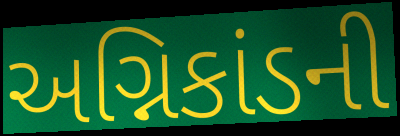
અગ્નિકાંડની